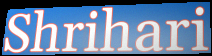
Shrihari